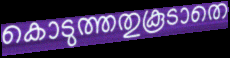
കൊടുത്തതുകൂടാതെ